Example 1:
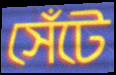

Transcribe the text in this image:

সেঁটে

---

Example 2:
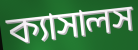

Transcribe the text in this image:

ক্যাসালস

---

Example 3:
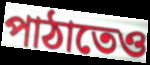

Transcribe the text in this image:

পাঠাতেও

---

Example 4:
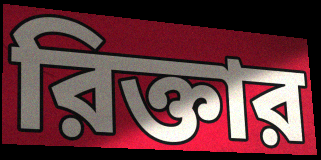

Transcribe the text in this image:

রিক্তার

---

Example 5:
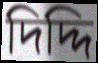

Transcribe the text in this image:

দিদ্দি